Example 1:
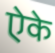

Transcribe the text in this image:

ऐके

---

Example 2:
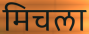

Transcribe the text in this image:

मिचला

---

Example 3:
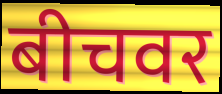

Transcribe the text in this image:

बीचवर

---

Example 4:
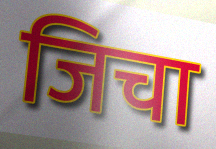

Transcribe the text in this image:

जिचा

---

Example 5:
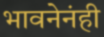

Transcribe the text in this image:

भावनेनंही